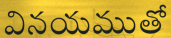
వినయముతో